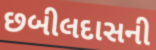
છબીલદાસની